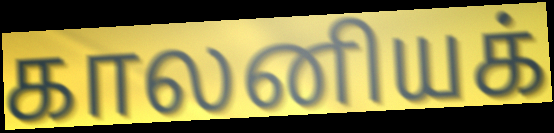
காலனியக்